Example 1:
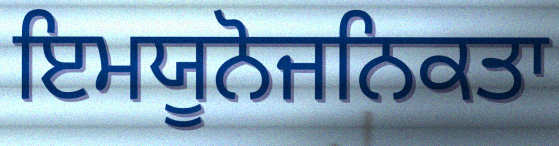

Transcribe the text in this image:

ਇਮਯੂਨੋਜਨਿਕਤਾ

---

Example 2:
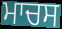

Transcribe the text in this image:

ਮਾਚਸ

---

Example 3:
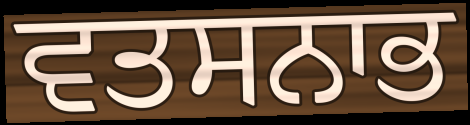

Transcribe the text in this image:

ਵਤਸਨਾਭ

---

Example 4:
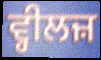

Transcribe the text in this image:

ਵ੍ਹੀਲਜ਼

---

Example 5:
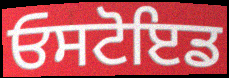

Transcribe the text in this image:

ਓਸਟੋਇਡ